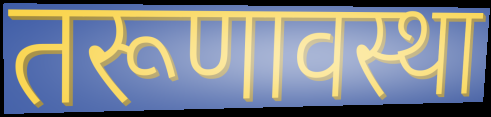
तरूणावस्था